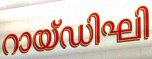
റായ്ഡിഘി